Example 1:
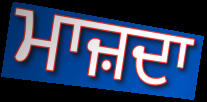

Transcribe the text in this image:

ਮਾਜ਼ਦਾ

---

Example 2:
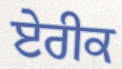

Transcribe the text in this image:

ਏਰੀਕ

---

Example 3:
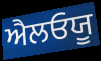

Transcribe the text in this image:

ਐਲਓਯੂ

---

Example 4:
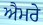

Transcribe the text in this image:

ਐਮਰੇ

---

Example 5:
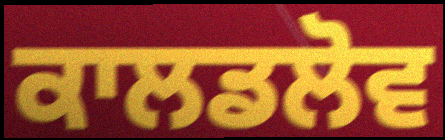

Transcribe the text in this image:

ਕਾਲਡਲੋਵ